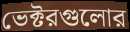
ভেক্টরগুলোর